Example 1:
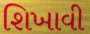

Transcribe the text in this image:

શિખાવી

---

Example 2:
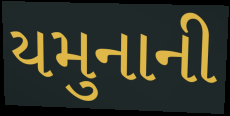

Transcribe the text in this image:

યમુનાની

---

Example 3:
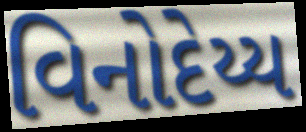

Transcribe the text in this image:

વિનોદેય્ય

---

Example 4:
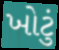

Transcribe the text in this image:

ખોટું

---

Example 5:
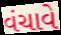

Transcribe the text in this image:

વંચાવે